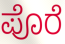
ಪೊರೆ